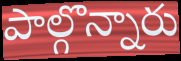
పాల్గొన్నారు